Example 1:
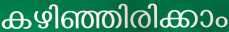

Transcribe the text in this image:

കഴിഞ്ഞിരിക്കാം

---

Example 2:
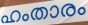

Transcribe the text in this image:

ഹംതാരം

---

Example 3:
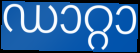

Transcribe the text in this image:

ഡാറ്റാ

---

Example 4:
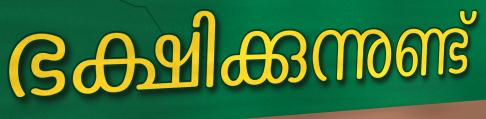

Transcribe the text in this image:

ഭക്ഷിക്കുന്നുണ്ട്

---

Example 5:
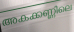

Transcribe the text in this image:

അകക്കണ്ണിലെ